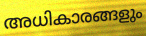
അധികാരങ്ങളും